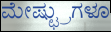
ಮೇಷ್ಟ್ರುಗಳೂ